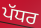
ਪੱਧਰ